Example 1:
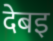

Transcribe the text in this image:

देबइ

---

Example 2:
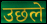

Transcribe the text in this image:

उछले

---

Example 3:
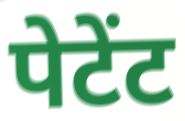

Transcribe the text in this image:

पेटेंट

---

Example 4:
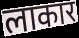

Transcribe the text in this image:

लाकार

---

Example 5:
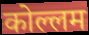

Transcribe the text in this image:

कोल्लम